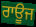
ਰਾਊਜ